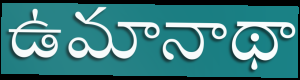
ఉమానాథా